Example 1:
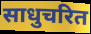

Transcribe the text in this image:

साधुचरित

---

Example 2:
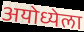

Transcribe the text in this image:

अयोध्येला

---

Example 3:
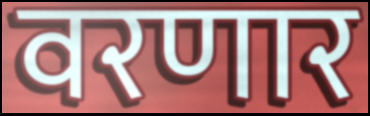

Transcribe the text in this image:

वरणार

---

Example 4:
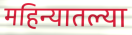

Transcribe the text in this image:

महिन्यातल्या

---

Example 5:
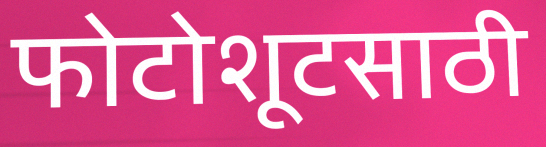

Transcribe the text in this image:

फोटोशूटसाठी